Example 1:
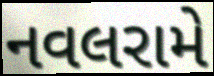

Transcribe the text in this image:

નવલરામે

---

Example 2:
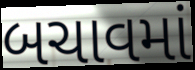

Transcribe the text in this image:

બચાવમાં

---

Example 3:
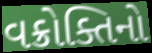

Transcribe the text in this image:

વક્રોક્તિનો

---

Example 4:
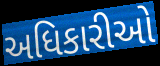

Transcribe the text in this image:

અધિકારીઓ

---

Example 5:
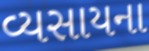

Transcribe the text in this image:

વ્યસાયના